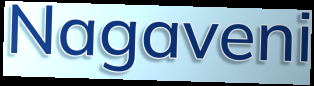
Nagaveni